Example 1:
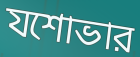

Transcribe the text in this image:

যশোভার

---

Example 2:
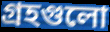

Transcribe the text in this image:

গ্রহগুলো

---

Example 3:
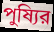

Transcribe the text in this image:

পুষ্যির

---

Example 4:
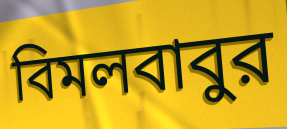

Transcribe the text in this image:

বিমলবাবুর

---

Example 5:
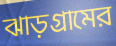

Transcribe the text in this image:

ঝাড়গ্রামের